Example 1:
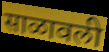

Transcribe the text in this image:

साळावली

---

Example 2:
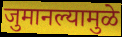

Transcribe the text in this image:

जुमानल्यामुळे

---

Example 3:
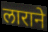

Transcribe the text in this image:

लाराने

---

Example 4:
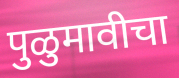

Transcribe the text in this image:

पुळुमावीचा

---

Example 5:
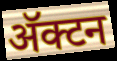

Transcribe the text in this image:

ॲक्टन